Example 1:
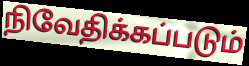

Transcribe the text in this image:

நிவேதிக்கப்படும்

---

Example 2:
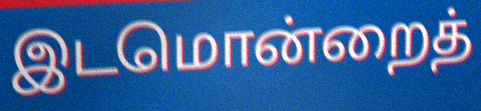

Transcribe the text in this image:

இடமொன்றைத்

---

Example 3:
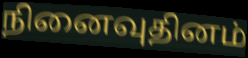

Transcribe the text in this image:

நினைவுதினம்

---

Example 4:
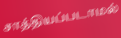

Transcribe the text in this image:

சாத்தியப்படாமல்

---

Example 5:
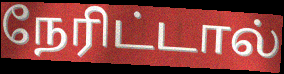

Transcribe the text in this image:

நேரிட்டால்